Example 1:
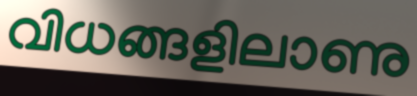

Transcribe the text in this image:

വിധങ്ങളിലാണു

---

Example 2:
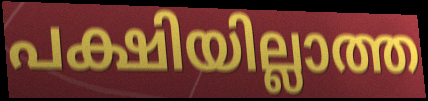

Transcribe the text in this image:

പക്ഷിയില്ലാത്ത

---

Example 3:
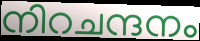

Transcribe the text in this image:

നിറചന്ദനം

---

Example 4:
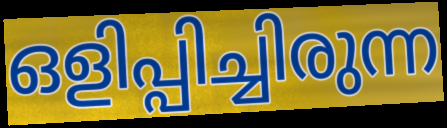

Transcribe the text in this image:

ഒളിപ്പിച്ചിരുന്ന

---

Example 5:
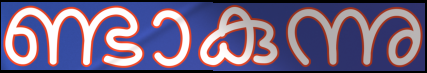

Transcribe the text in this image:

ണ്ടാകുന്നു